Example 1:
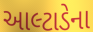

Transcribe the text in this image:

આલ્ટાડેના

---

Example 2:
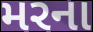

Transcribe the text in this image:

મરના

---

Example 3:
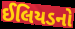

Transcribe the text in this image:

ઈલિયડનો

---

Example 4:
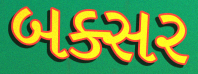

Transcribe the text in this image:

બક્સર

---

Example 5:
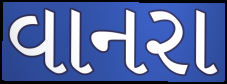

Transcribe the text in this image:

વાનરા